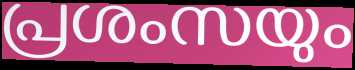
പ്രശംസയും